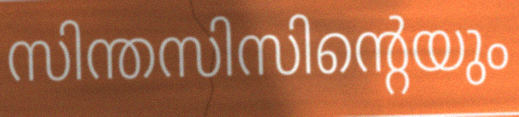
സിന്തസിസിന്റെയും